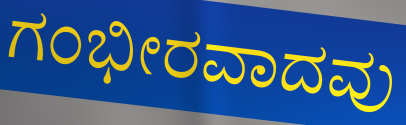
ಗಂಭೀರವಾದವು